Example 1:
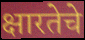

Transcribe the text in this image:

क्षारतेचे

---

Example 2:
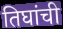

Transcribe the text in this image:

तिघांची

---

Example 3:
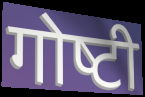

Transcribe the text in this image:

गोष्‍टी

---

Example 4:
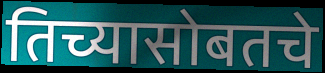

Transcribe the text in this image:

तिच्यासोबतचे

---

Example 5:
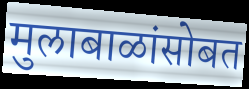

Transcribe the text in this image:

मुलाबाळांसोबत